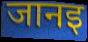
जानइ